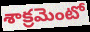
శాక్రమెంటో